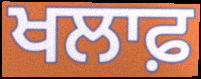
ਖਲਾਫ਼